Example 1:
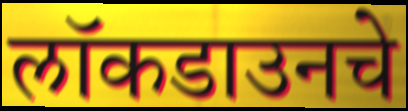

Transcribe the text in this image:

लॉकडाउनचे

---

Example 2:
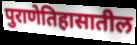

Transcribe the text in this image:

पुराणेतिहासातील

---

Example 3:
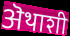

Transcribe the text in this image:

ऄथाशी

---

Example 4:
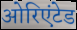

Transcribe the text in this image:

ओरिएंटेड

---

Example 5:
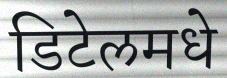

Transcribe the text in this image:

डिटेलमधे